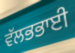
ਵੱਲਭਭਾਈ